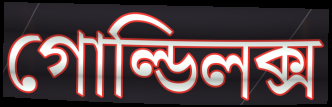
গোল্ডিলক্স